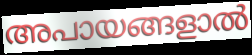
അപായങ്ങളാൽ